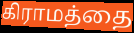
கிராமத்தை